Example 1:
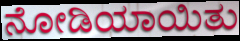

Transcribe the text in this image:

ನೋಡಿಯಾಯಿತು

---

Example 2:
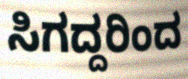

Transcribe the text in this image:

ಸಿಗದ್ದರಿಂದ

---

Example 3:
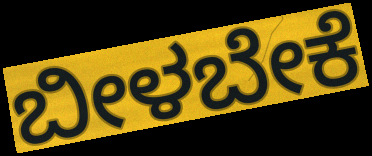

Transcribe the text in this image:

ಬೀಳಬೇಕೆ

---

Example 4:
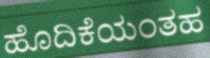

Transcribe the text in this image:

ಹೊದಿಕೆಯಂತಹ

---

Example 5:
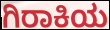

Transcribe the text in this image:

ಗಿರಾಕಿಯ